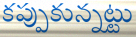
కప్పుకున్నట్టు